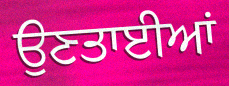
ਉਣਤਾਈਆਂ